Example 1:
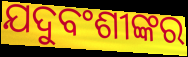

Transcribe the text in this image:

ଯଦୁବଂଶୀଙ୍କର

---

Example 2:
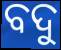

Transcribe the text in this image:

ବଦୁ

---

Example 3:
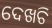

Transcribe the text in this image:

ଦେଖଚି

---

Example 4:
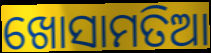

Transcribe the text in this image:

ଖୋସାମତିଆ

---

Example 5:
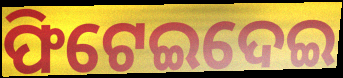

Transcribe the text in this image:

ଫିଟେଇଦେଇ